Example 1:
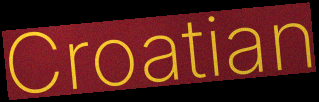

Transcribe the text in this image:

Croatian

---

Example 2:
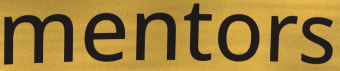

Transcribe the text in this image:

mentors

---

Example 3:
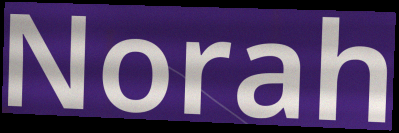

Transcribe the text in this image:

Norah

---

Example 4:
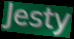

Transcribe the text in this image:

Jesty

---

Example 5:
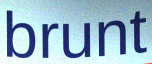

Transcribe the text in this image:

brunt